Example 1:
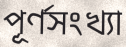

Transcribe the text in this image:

পূর্ণসংখ্যা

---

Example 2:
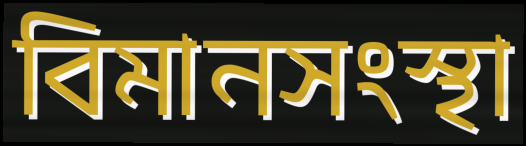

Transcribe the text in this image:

বিমানসংস্থা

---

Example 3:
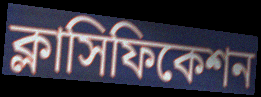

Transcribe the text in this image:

ক্লাসিফিকেশন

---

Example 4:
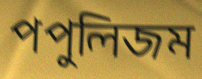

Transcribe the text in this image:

পপুলিজম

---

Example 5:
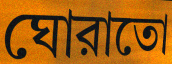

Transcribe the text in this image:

ঘোরাতো